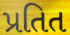
પ્રતિત